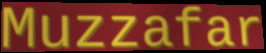
Muzzafar